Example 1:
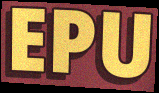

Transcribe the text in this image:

EPU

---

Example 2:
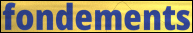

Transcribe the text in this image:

fondements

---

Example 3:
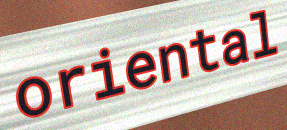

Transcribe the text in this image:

oriental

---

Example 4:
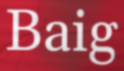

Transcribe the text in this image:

Baig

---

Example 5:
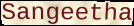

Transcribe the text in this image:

Sangeetha